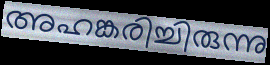
അഹങ്കരിച്ചിരുന്നു